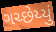
ગચ્છેય્યું